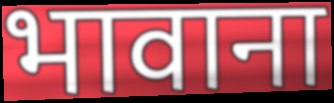
भावाना